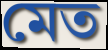
মেত